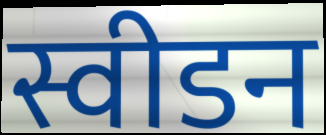
स्वीडन